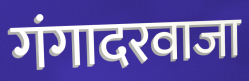
गंगादरवाजा